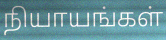
நியாயங்கள்